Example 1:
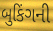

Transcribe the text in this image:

બુકિંગની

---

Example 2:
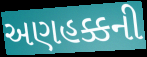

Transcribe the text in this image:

અણહક્કની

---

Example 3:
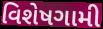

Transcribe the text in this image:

વિશેષગામી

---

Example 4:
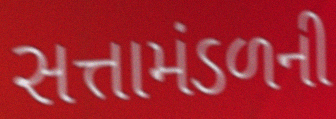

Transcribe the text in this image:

સત્તામંડળની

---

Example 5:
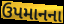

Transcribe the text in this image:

ઉપમાનના